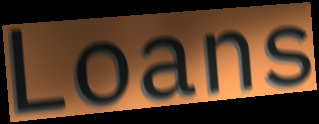
Loans